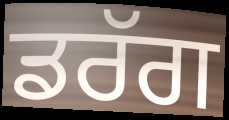
ਡਰੱਗ